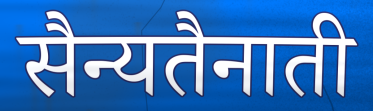
सैन्यतैनाती